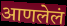
आणलेलं